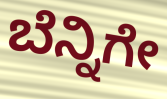
ಬೆನ್ನಿಗೇ